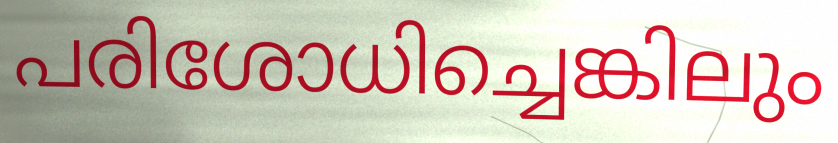
പരിശോധിച്ചെങ്കിലും